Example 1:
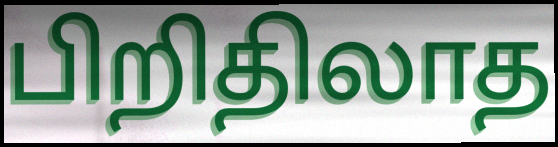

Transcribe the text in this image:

பிறிதிலாத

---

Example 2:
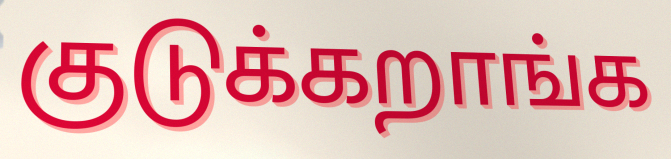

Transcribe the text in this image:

குடுக்கறாங்க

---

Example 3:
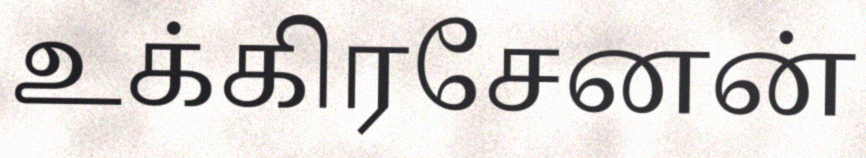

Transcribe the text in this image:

உக்கிரசேனன்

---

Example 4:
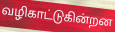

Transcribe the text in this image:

வழிகாட்டுகின்றன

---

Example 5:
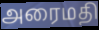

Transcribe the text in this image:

அரைமதி